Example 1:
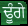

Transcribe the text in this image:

ਢੂੰਗੇ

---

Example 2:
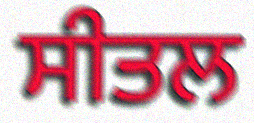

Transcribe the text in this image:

ਸੀਤਲ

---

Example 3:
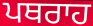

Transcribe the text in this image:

ਪਥਰਾਹ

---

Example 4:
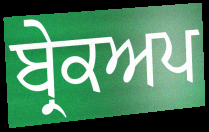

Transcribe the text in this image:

ਬ੍ਰੇਕਅਪ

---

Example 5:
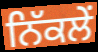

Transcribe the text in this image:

ਨਿੱਕਲੇਂ